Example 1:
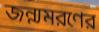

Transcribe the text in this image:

জন্মমরণের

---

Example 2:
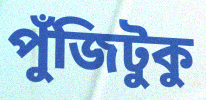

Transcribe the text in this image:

পুঁজিটুকু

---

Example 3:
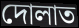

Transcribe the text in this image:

দোলাত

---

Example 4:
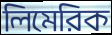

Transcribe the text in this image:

লিমেরিক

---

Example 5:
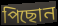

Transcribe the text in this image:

পিছোন